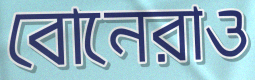
বোনেরাও